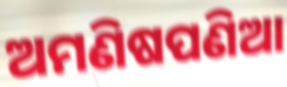
ଅମଣିଷପଣିଆ